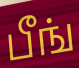
பீங்